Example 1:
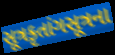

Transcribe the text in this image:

સૂત્રકૃતાંગસૂત્રના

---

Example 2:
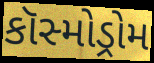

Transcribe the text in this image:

કૉસ્મોડ્રોમ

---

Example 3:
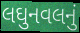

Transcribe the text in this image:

લઘુનવલનું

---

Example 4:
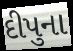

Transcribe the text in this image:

દીપુના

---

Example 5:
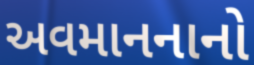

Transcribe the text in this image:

અવમાનનાનો